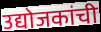
उद्योजकांची